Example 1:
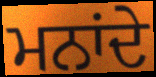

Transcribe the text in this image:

ਮਨਾਂਦੇ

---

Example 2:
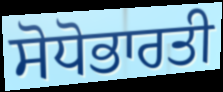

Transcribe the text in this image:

ਸੋਧੋਭਾਰਤੀ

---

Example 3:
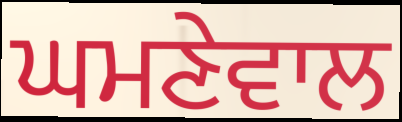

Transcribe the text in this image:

ਘਮਣੇਵਾਲ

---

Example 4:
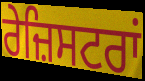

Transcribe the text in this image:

ਰੇਜ਼ਿਸਟਰਾਂ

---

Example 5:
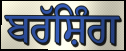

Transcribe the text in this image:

ਬਰੱਸ਼ਿੰਗ